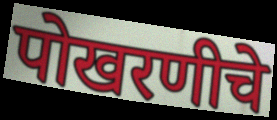
पोखरणीचे